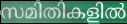
സമിതികളിൽ